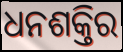
ଧନଶକ୍ତିର